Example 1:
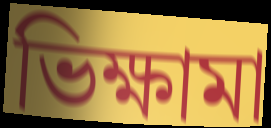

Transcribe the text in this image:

ভিক্ষামা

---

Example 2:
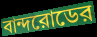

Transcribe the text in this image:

বান্দরোডের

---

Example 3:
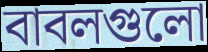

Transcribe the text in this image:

বাবলগুলো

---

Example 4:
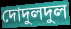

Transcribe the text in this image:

দোদুলদুল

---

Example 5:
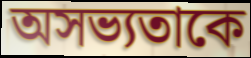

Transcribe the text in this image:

অসভ্যতাকে